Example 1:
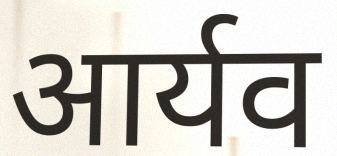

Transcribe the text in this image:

आर्यव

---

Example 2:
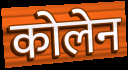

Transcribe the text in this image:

कोलेन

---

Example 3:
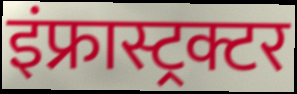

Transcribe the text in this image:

इंफ्रास्ट्रक्टर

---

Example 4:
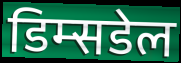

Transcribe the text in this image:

डिम्सडेल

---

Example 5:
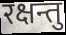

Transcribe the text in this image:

रक्षन्तु